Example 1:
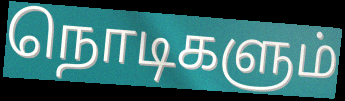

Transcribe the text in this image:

நொடிகளும்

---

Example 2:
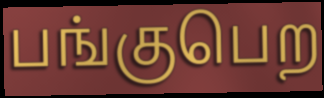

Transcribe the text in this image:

பங்குபெற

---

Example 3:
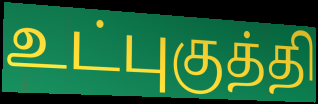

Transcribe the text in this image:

உட்புகுத்தி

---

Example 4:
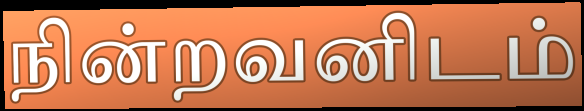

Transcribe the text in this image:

நின்றவனிடம்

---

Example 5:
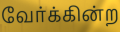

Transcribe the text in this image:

வேர்க்கின்ற